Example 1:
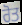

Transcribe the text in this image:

ਰੋਤ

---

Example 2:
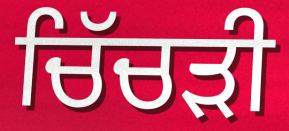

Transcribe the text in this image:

ਚਿੱਚੜੀ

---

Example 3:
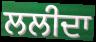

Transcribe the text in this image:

ਲਲੀਦਾ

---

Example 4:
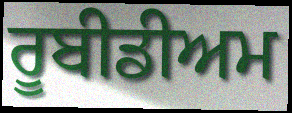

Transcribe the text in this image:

ਰੂਬੀਡੀਅਮ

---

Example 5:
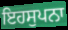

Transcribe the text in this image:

ਇਹਸੁਪਨਾ